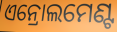
ଏନ୍ରୋଲମେଣ୍ଟ